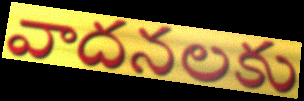
వాదనలకు